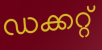
ഡക്കറ്റ്